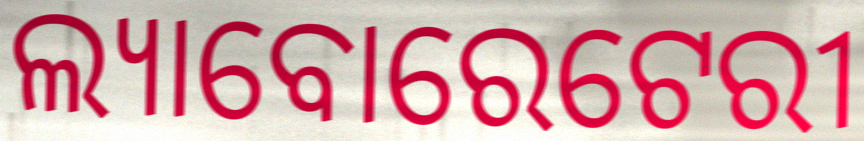
ଲ୍ୟାବୋରେଟେରୀ